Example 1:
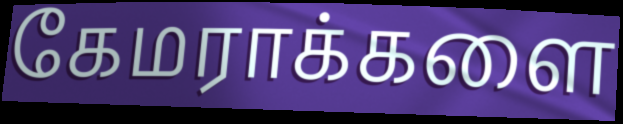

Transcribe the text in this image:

கேமராக்களை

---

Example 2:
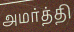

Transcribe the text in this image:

அமர்த்தி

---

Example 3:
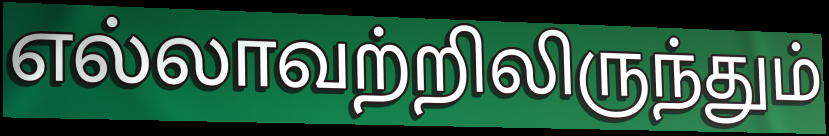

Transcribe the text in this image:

எல்லாவற்றிலிருந்தும்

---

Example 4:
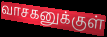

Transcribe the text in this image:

வாசகனுக்குள்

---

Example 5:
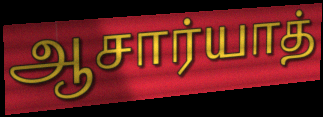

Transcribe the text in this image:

ஆசார்யாத்